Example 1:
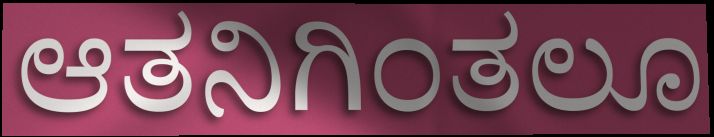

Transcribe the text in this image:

ಆತನಿಗಿಂತಲೂ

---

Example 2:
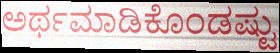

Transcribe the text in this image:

ಅರ್ಥಮಾಡಿಕೊಂಡಷ್ಟು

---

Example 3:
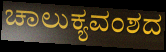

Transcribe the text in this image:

ಚಾಲುಕ್ಯವಂಶದ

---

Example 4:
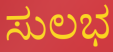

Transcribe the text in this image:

ಸುಲಭ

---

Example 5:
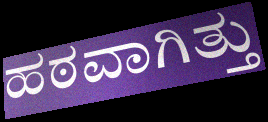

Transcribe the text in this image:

ಹಠವಾಗಿತ್ತು